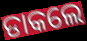
ଡାକଲେ